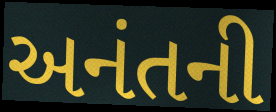
અનંતની